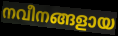
നവീനങ്ങളായ